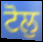
ਟੋਲੁ